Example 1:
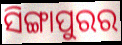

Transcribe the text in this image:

ସିଙ୍ଗାପୁରର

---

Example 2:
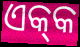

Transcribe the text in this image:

ଏକ୍‍କ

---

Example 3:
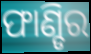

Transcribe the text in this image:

ଫାଣ୍ଡିର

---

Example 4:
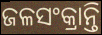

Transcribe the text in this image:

ଜଳସଂକ୍ରାନ୍ତି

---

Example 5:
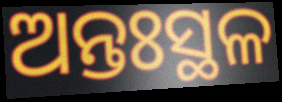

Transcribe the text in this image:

ଅନ୍ତଃସ୍ଥଳ